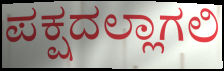
ಪಕ್ಷದಲ್ಲಾಗಲಿ